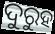
ଦୁରୁହ